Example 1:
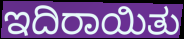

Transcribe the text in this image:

ಇದಿರಾಯಿತು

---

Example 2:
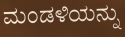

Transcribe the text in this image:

ಮಂಡಳಿಯನ್ನು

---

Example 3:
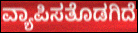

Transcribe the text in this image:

ವ್ಯಾಪಿಸತೊಡಗಿದೆ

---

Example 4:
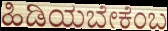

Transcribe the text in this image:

ಹಿಡಿಯಬೇಕೆಂಬ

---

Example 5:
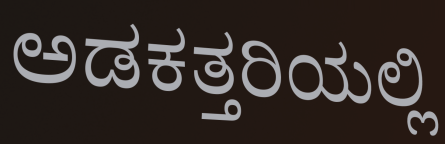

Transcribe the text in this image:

ಅಡಕತ್ತರಿಯಲ್ಲಿ